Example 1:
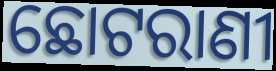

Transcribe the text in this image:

ଛୋଟରାଣୀ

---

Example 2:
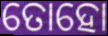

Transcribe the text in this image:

ତୋହୋ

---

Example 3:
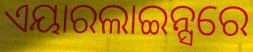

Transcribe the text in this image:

ଏୟାରଲାଇନ୍ସରେ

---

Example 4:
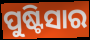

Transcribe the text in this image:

ପୁଷ୍ଟିସାର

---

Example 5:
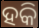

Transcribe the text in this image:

ହକି